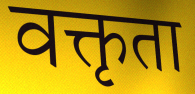
वक्तृता